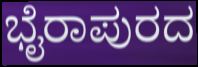
ಭೈರಾಪುರದ